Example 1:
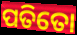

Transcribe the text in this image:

ପତିତୋ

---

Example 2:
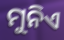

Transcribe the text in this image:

ମୁନିଏ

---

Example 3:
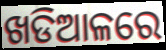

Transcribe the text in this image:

ଖଡିଆଳରେ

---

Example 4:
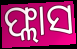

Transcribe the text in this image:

ଫ୍ଲାସ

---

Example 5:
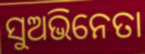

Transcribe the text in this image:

ସୁଅଭିନେତା